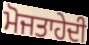
ਮੋਜਤਾਹੇਦੀ